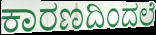
ಕಾರಣದಿಂದಲೆ